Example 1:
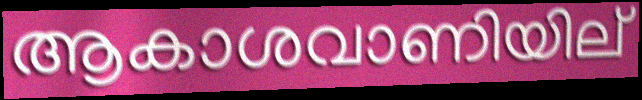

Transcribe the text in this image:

ആകാശവാണിയില്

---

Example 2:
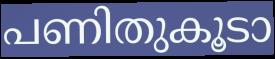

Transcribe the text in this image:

പണിതുകൂടാ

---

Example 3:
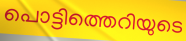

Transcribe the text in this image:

പൊട്ടിത്തെറിയുടെ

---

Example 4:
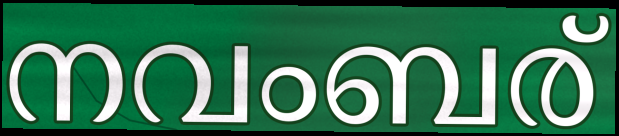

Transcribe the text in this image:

നവംബര്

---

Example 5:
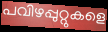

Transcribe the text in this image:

പവിഴപ്പുറ്റുകളെ